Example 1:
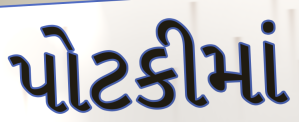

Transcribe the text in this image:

પોટકીમાં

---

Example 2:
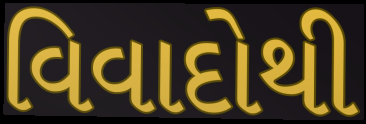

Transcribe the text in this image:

વિવાદોથી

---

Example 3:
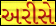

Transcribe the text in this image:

અરીસે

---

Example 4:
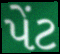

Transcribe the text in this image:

પેંટ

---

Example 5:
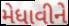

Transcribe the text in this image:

મેધાવીને